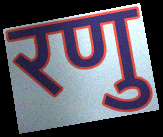
रणु